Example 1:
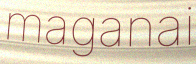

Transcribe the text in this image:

maganai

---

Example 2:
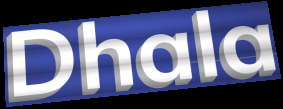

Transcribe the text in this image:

Dhala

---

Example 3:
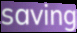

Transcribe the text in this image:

saving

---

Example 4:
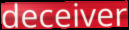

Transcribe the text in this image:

deceiver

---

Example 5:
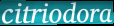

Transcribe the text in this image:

citriodora